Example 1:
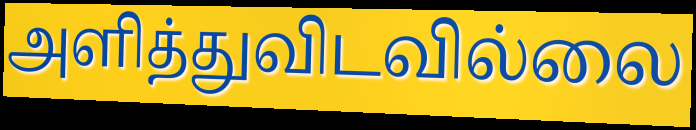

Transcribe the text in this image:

அளித்துவிடவில்லை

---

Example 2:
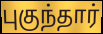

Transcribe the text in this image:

புகுந்தார்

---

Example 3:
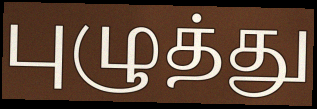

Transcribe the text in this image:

புழுத்து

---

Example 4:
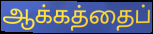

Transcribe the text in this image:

ஆக்கத்தைப்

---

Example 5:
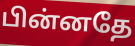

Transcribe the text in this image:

பின்னதே